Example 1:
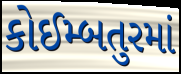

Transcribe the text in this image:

કોઈમ્બતુરમાં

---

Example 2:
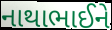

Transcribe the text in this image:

નાથાભાઈને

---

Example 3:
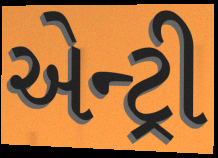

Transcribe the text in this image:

એન્‍ટ્રી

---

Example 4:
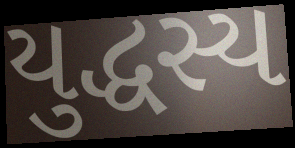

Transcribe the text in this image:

યુદ્ધસ્ય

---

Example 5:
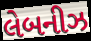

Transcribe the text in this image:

લેબનીઝ